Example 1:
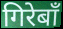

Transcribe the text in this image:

गिरेबाँ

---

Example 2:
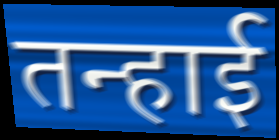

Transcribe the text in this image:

तन्हाई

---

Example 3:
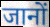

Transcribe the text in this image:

जानों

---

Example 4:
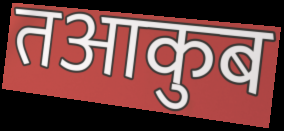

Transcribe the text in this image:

तआकुब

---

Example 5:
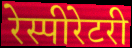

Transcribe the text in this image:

रेस्पीरेटरी